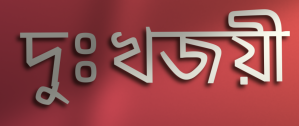
দুঃখজয়ী